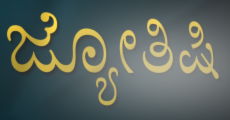
ಜ್ಯೋತಿಷಿ